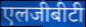
एलजीबीटी